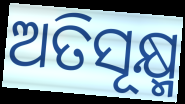
ଅତିସୂକ୍ଷ୍ମ